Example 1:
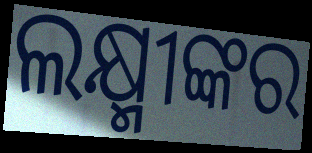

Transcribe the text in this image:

ଲକ୍ଷ୍ମୀଙ୍କର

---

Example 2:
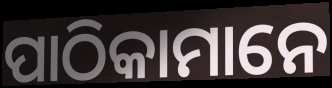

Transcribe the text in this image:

ପାଠିକାମାନେ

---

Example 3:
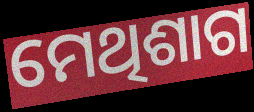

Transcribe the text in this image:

ମେଥିଶାଗ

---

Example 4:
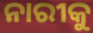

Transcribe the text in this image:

ନାରୀକୁ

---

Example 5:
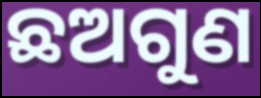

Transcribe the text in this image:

ଛଅଗୁଣ